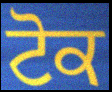
ਟੋਕ